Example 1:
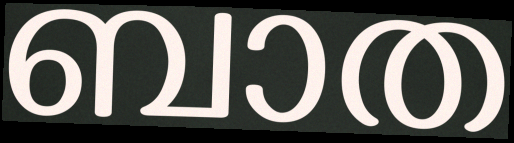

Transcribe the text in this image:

ബാത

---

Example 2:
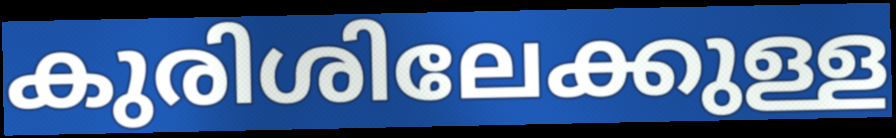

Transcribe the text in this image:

കുരിശിലേക്കുള്ള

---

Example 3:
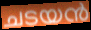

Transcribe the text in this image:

ചടയൻ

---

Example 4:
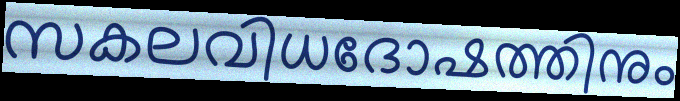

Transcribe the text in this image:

സകലവിധദോഷത്തിനും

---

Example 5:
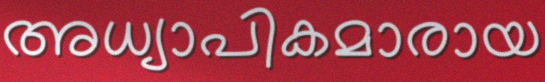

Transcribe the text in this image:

അധ്യാപികമാരായ